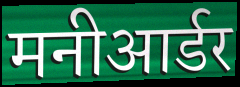
मनीआर्डर